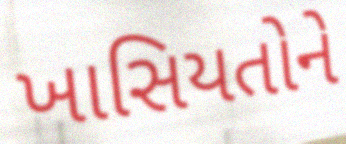
ખાસિયતોને